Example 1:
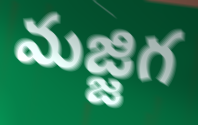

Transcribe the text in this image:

మజ్జిగ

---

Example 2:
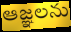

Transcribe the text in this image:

ఆజ్ఞలను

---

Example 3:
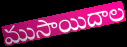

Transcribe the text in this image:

ముసాయిదాల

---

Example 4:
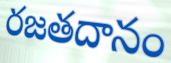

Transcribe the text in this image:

రజతదానం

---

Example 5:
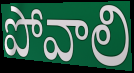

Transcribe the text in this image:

పోవాలి